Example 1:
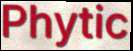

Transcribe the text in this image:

Phytic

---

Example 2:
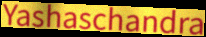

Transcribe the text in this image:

Yashaschandra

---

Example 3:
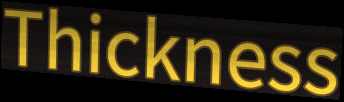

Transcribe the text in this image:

Thickness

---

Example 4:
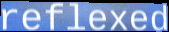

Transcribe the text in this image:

reflexed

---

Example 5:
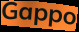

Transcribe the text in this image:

Gappo